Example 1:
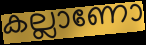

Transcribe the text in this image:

കല്ലാണോ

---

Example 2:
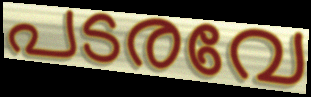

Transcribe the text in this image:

പടരവേ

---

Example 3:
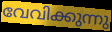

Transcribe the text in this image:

വേവിക്കുന്നു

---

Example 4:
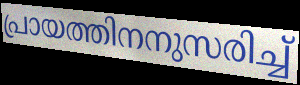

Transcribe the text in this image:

പ്രായത്തിനനുസരിച്ച്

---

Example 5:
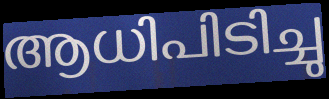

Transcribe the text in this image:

ആധിപിടിച്ചു